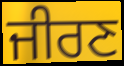
ਜੀਰਣ